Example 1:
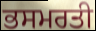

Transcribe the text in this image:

ਭਸਮਰਤੀ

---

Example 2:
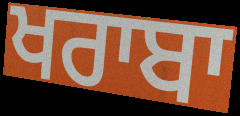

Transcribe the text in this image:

ਖਰਾਬਾ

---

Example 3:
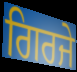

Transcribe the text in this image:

ਗਿਰਜੇ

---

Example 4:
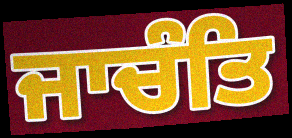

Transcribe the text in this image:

ਜਾਚੰਤਿ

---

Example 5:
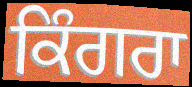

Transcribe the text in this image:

ਕਿੰਗਰਾ